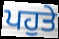
ਪਹੁਤੇ